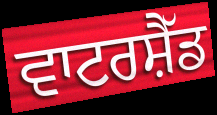
ਵਾਟਰਸ਼ੈੱਡ